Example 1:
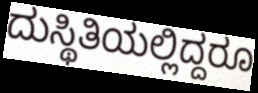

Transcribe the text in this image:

ದುಸ್ಥಿತಿಯಲ್ಲಿದ್ದರೂ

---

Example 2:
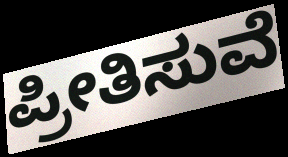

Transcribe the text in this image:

ಪ್ರೀತಿಸುವೆ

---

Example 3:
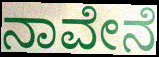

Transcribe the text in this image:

ನಾವೇನೆ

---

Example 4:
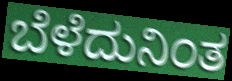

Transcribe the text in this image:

ಬೆಳೆದುನಿಂತ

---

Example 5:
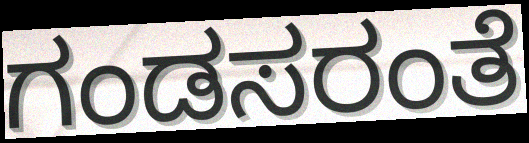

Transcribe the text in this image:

ಗಂಡಸರಂತೆ